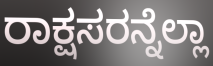
ರಾಕ್ಷಸರನ್ನೆಲ್ಲಾ